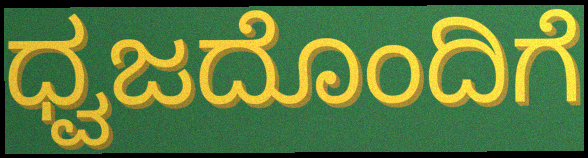
ಧ್ವಜದೊಂದಿಗೆ